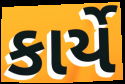
કાર્યે